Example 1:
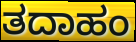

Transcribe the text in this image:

ತದಾಹಂ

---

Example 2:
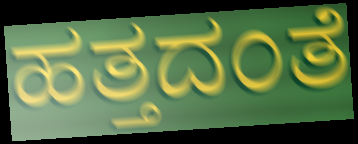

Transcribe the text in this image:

ಹತ್ತದಂತೆ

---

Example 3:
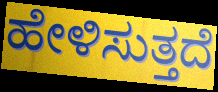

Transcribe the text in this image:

ಹೇಳಿಸುತ್ತದೆ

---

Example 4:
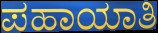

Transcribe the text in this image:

ಪಹಾಯಾತಿ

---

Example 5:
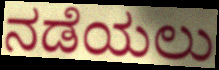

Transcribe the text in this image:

ನಡೆಯಲು